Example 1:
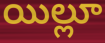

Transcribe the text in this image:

యిల్లూ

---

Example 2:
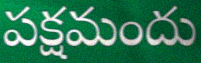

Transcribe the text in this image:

పక్షమందు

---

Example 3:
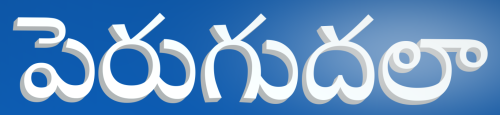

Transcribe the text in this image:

పెరుగుదలా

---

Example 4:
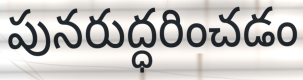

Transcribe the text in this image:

పునరుద్ధరించడం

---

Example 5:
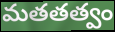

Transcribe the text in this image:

మతతత్వం